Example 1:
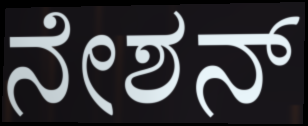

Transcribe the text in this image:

ನೇಶನ್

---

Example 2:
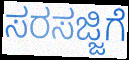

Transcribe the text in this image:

ಸರಸಜ್ಜಿಗೆ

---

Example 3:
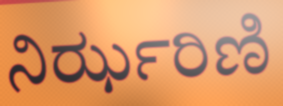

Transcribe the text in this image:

ನಿರ್ಝರಿಣಿ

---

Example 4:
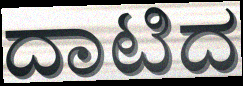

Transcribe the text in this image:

ದಾಟಿದ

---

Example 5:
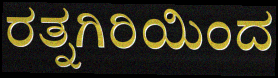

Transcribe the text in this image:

ರತ್ನಗಿರಿಯಿಂದ